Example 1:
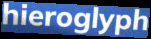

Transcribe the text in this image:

hieroglyph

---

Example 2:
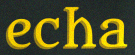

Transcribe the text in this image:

echa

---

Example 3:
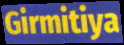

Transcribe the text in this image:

Girmitiya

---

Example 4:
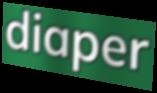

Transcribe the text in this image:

diaper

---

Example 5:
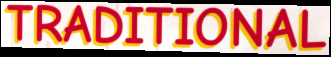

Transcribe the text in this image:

TRADITIONAL